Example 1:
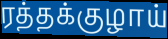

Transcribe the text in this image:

ரத்தக்குழாய்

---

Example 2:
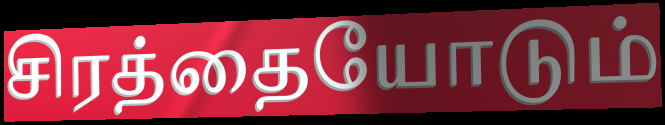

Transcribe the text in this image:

சிரத்தையோடும்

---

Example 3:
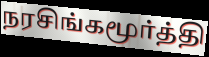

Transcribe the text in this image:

நரசிங்கமூர்த்தி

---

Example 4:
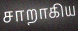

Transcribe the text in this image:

சாறாகிய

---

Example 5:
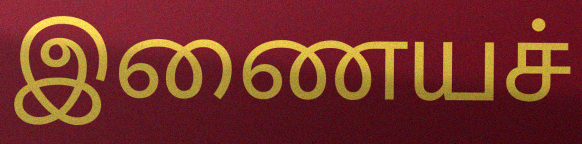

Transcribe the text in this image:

இணையச்